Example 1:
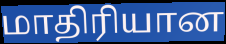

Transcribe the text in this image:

மாதிரியான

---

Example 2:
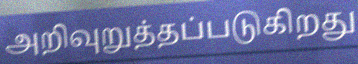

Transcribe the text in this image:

அறிவுறுத்தப்படுகிறது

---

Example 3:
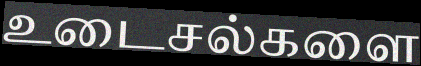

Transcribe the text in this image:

உடைசல்களை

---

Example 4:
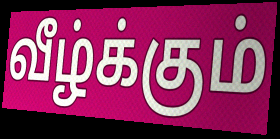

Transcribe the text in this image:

வீழ்க்கும்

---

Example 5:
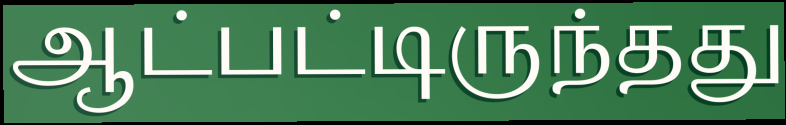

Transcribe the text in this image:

ஆட்பட்டிருந்தது